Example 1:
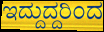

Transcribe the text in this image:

ಇದ್ದುದ್ದರಿಂದ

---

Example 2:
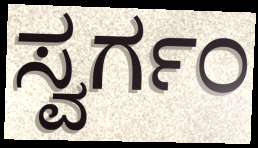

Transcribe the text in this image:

ಸ್ವರ್ಗಂ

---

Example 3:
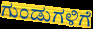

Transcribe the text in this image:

ಗುಂಡುಗಳಿಗೆ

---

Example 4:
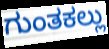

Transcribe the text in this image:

ಗುಂತಕಲ್ಲು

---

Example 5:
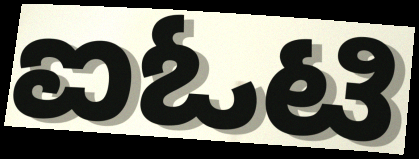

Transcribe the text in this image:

ಐಓಟಿ